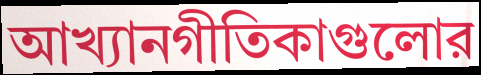
আখ্যানগীতিকাগুলোর